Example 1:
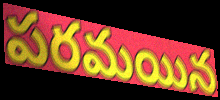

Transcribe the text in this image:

పరమయిన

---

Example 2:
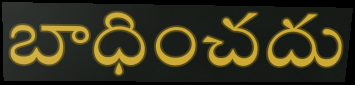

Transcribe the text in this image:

బాధించదు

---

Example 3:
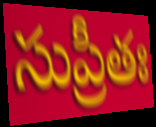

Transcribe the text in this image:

సుప్రీతః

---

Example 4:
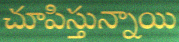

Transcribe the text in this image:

చూపిస్తున్నాయి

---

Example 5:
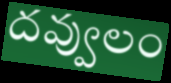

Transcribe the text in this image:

దవ్వులం